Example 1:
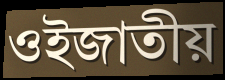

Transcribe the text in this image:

ওইজাতীয়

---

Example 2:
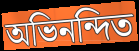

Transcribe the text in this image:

অভিনন্দিত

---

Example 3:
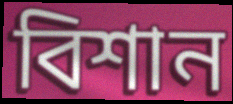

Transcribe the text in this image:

বিশান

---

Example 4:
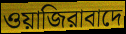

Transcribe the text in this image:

ওয়াজিরাবাদে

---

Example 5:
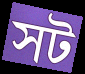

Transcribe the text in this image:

সট